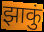
झाकुं